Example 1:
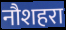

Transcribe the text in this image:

नौशहरा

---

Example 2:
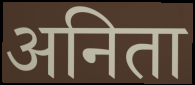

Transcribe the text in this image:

अनिता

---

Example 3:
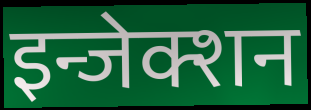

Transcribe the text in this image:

इन्जेक्शन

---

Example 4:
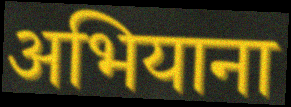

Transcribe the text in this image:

अभियाना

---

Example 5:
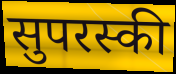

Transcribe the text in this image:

सुपरस्की